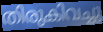
തിരുകിവച്ചു